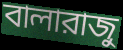
বালারাজু